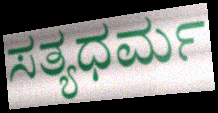
ಸತ್ಯಧರ್ಮ